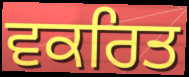
ਵਕਰਿਤ